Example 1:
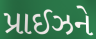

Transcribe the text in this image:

પ્રાઈઝને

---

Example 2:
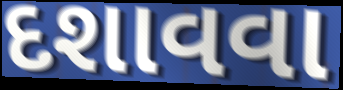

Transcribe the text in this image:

દશાવવા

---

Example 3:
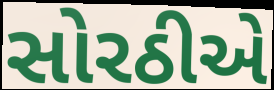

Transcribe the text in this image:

સોરઠીએ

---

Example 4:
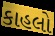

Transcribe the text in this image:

કાહલો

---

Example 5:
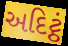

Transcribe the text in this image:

અદિટ્ઠં